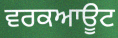
ਵਰਕਆਊਟ